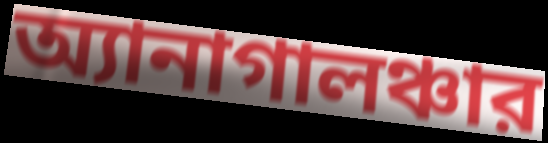
অ্যানাগালঞ্চার